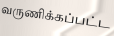
வருணிக்கப்பட்ட